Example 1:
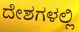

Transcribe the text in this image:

ದೇಶಗಳಲ್ಲಿ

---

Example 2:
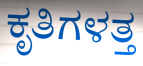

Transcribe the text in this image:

ಕೃತಿಗಳತ್ತ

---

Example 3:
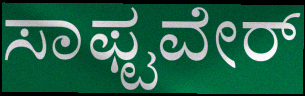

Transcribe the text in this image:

ಸಾಫ್ಟವೇರ್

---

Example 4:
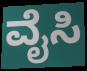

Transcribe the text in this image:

ವೈಸಿ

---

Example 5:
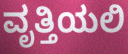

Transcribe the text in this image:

ವೃತ್ತಿಯಲಿ